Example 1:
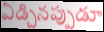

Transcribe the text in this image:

ఏడ్చినప్పుడూ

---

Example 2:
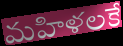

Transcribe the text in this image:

మహిళలకే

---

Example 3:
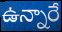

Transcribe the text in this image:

ఉన్నారే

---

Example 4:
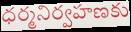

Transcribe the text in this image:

ధర్మనిర్వహణకు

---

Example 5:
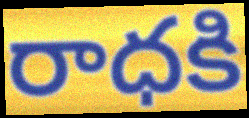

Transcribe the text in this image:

రాధకి